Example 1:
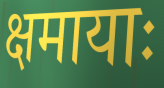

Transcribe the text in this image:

क्षमायाः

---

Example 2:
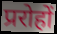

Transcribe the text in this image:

प्ररोहों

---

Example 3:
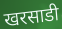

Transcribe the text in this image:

खरसाडी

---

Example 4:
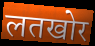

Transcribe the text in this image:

लतखोर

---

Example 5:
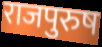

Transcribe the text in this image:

राजपुरुष